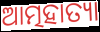
ଆତ୍ମହାତ୍ୟା